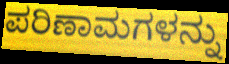
ಪರಿಣಾಮಗಳನ್ನು